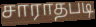
சாராதபடி